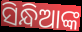
ସିନ୍ଧିଆଙ୍କ